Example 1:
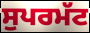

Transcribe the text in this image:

ਸੁਪਰਮੱਟ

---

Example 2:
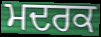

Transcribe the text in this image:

ਮਦਰਕ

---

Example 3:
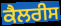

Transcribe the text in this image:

ਕੈਲਰੀਸ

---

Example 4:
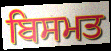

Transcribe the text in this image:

ਬਿਸਮਤ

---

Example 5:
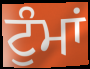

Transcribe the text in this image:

ਟੁੰਮਾਂ